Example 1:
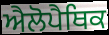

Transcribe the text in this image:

ਐਲੋਪੈਥਿਕ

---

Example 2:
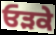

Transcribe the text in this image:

ਓੜਕੇ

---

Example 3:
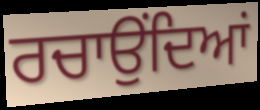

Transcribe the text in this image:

ਰਚਾਉਂਦਿਆਂ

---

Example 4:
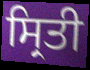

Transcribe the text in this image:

ਸ੍ਰਿਤੀ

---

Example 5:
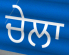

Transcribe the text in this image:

ਚੇਲਾ